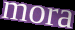
mora